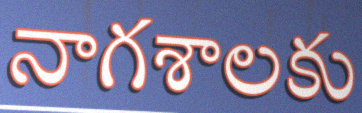
నాగశాలకు